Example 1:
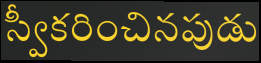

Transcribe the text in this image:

స్వీకరించినపుడు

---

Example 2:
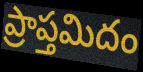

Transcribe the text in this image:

ప్రాప్తమిదం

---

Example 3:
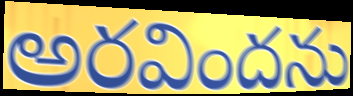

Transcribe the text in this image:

అరవిందను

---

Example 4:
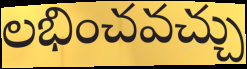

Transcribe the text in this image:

లభించవచ్చు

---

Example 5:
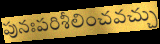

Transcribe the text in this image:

పునఃపరిశీలించవచ్చు